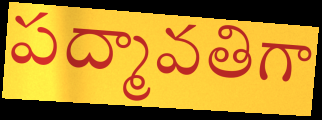
పద్మావతిగా